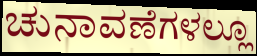
ಚುನಾವಣೆಗಳಲ್ಲೂ